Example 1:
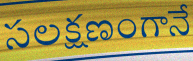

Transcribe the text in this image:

సలక్షణంగానే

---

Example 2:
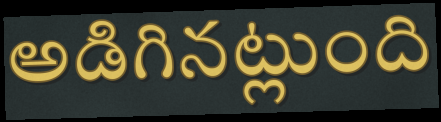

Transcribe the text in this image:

అడిగినట్లుంది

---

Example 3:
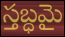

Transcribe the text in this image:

స్తబ్ధమై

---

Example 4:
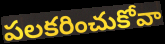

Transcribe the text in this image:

పలకరించుకోవా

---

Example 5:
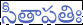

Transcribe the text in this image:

సీతాపతిః